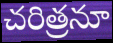
చరిత్రనూ